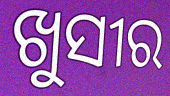
ଖୁସୀର